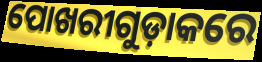
ପୋଖରୀଗୁଡ଼ାକରେ